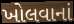
ખોલવાનાં